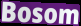
Bosom